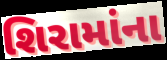
શિરામાંના